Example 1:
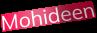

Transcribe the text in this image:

Mohideen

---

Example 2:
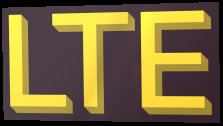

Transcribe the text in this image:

LTE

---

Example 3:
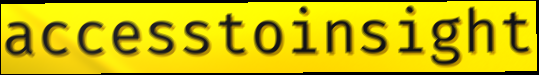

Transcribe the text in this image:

accesstoinsight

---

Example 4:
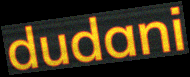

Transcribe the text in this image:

dudani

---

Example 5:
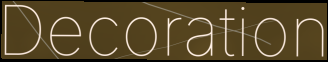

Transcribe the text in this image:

Decoration